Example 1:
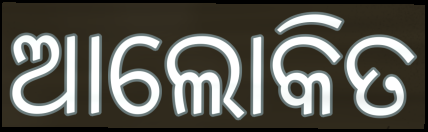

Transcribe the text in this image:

ଆଲୋକିତ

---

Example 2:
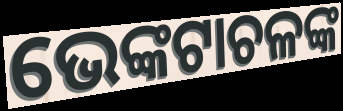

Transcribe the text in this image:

ଭେଙ୍କଟାଚଳଙ୍କ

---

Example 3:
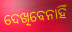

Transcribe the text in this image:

ଦେଖିବେନାହିଁ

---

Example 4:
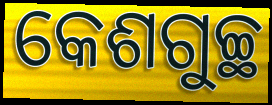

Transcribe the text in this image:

କେଶଗୁଚ୍ଛ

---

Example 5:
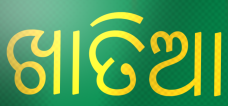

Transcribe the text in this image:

ଖାତିଆ